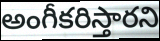
అంగీకరిస్తారని